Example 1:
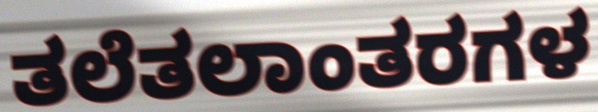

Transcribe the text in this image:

ತಲೆತಲಾಂತರಗಳ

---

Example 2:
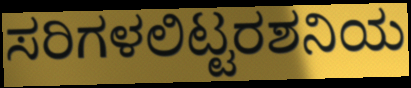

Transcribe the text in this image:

ಸರಿಗಳಲಿಟ್ಟರಶನಿಯ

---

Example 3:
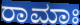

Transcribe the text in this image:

ರಾಮಾಃ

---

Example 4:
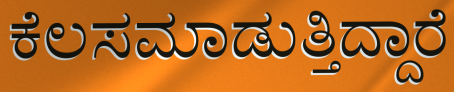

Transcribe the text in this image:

ಕೆಲಸಮಾಡುತ್ತಿದ್ದಾರೆ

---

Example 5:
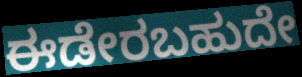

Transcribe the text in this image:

ಈಡೇರಬಹುದೇ